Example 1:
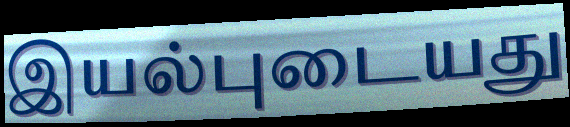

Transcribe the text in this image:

இயல்புடையது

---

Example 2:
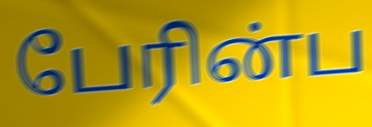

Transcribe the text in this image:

பேரின்ப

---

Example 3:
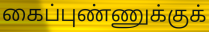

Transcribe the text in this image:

கைப்புண்ணுக்குக்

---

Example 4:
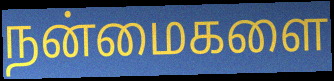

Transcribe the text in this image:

நன்மைகளை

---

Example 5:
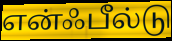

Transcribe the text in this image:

என்ஃபீல்டு